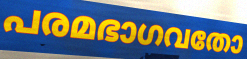
പരമഭാഗവതോ